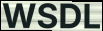
WSDL